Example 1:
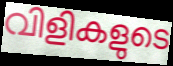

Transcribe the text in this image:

വിളികളുടെ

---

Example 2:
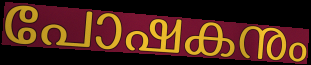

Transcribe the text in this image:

പോഷകനും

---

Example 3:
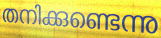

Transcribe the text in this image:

തനിക്കുണ്ടെന്നു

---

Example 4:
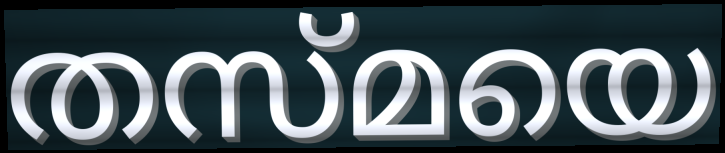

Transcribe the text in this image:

തസ്മയെ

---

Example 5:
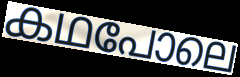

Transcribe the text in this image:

കഥപോലെ